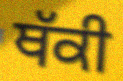
ਥੱਕੀ